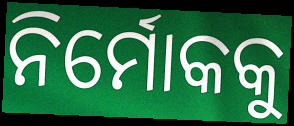
ନିର୍ମୋକକୁ